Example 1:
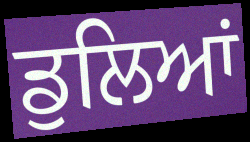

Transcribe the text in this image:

ਡੁਲਿਆਂ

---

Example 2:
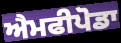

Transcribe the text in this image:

ਐਮਫੀਪੋਡਾ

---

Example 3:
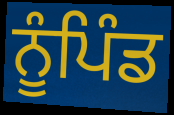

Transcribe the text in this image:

ਨੂੰਪਿੰਡ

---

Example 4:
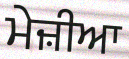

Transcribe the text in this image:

ਮੇਜ਼ੀਆ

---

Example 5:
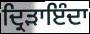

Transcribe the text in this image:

ਦ੍ਰਿੜਾਇੰਦਾ